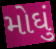
મોઘું